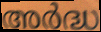
അർദ്ധ